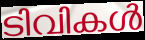
ടിവികൾ